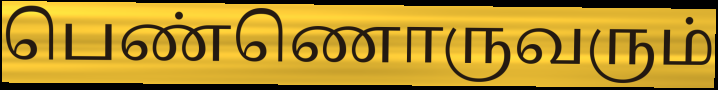
பெண்ணொருவரும்